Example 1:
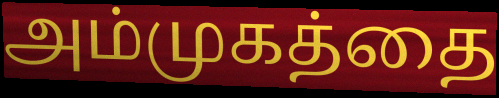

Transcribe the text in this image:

அம்முகத்தை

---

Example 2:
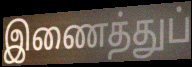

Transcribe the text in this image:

இணைத்துப்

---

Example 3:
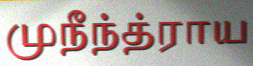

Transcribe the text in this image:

முநீந்த்ராய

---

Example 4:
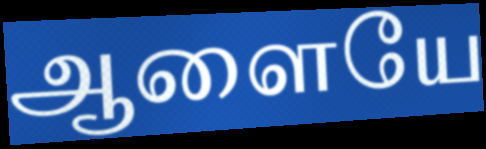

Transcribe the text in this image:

ஆளையே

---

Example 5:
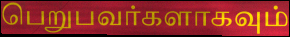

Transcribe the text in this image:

பெறுபவர்களாகவும்